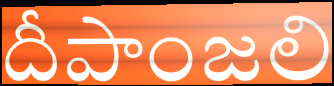
దీపాంజలి